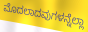
ಮೊದಲಾದವುಗಳನ್ನೆಲ್ಲಾ